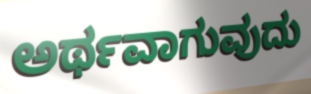
ಅರ್ಥವಾಗುವುದು